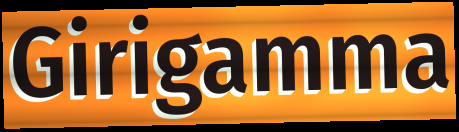
Girigamma